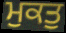
ਮੁਕਤੁ